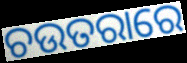
ଚଉତରାରେ